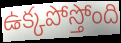
ఉక్కపోస్తోంది